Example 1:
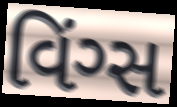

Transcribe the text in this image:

વિંગ્સ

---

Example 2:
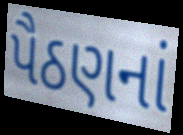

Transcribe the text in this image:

પૈઠણનાં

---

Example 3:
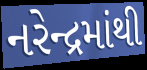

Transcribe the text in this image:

નરેન્દ્રમાંથી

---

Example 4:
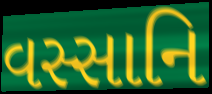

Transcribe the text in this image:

વસ્સાનિ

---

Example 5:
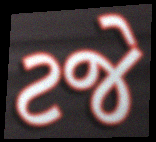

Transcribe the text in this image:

ટજે